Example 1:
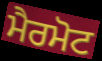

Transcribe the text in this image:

ਮੈਰਮੋਟ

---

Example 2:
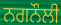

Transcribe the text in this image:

ਨਗਨੌਲੀ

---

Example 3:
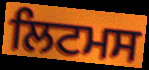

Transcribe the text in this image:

ਲਿਟਮਸ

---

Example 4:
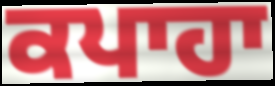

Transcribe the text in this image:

ਕਪਾਹਾ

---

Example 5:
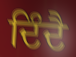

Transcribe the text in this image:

ਦਿੰਦੈ